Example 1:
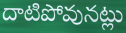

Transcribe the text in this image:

దాటిపోవునట్లు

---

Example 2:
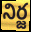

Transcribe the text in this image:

నిర్జ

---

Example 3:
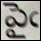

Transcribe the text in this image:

పైఁ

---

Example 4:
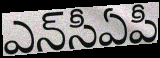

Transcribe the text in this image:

ఎన్‌సీఏపీ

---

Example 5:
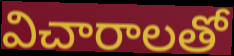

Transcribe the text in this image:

విచారాలతో